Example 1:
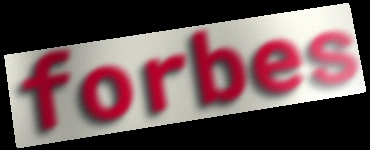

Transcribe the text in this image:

forbes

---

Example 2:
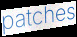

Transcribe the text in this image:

patches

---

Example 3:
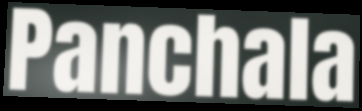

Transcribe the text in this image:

Panchala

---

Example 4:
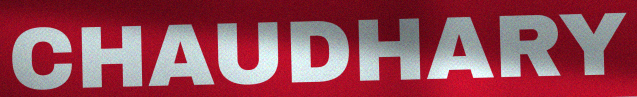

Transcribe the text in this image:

CHAUDHARY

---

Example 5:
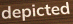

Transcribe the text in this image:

depicted